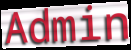
Admin